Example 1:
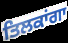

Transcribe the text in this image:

ਤਿਲਕਾਂਗਾ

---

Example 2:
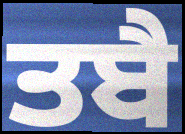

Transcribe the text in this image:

ਤਬੈ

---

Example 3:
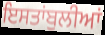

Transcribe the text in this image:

ਇਸਤਾਂਬੁਲੀਆਂ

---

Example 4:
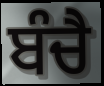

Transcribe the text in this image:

ਬੰਚੈ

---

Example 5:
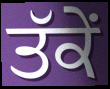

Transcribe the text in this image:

ਤੱਕੇਂ